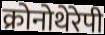
क्रोनोथेरेपी